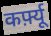
कर्फ़्यू